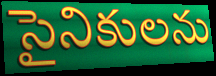
సైనికులను